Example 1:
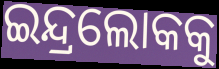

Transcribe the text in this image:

ଇନ୍ଦ୍ରଲୋକକୁ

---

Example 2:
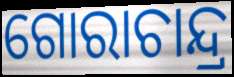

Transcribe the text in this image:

ଗୋରାଚାନ୍ଦ୍ର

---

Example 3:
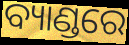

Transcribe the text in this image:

ବ୍ୟାଣ୍ଡରେ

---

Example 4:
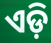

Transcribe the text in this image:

ଏଡ଼ି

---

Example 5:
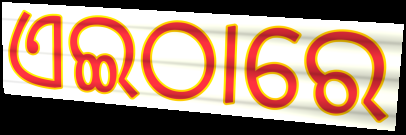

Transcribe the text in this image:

ଏଇଠାରେ